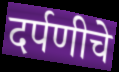
दर्पणीचे